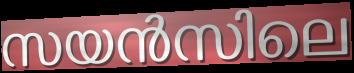
സയൻസിലെ